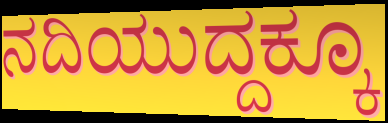
ನದಿಯುದ್ದಕ್ಕೂ